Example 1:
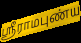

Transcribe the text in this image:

ஸ்ரீராமபுண்ய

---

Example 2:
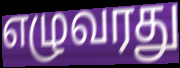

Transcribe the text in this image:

எழுவரது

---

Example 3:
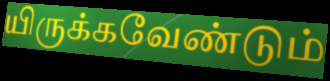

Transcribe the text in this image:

யிருக்கவேண்டும்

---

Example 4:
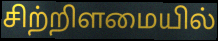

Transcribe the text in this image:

சிற்றிளமையில்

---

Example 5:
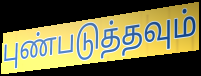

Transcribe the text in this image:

புண்படுத்தவும்